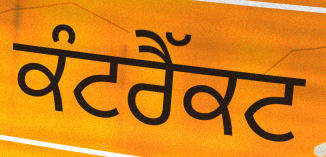
ਕੰਟਰੈੱਕਟ